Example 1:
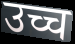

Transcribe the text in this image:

उच्च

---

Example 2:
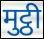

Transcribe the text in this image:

मुट्ठी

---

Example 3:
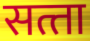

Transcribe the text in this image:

सत्‍ता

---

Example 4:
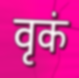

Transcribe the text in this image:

वृकं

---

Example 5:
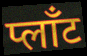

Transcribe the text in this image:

प्लाँट